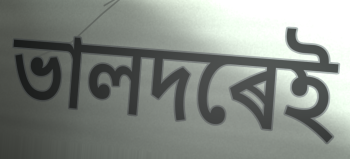
ভালদৰেই